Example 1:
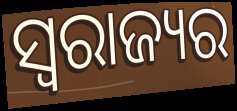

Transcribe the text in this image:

ସ୍ବରାଜ୍ୟର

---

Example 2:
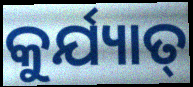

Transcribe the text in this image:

କୁର୍ଯ୍ୟାତ୍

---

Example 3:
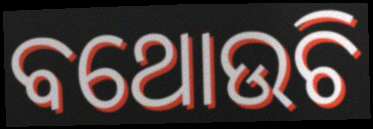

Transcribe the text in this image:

ବଥୋଉଚି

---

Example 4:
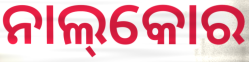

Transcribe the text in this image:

ନାଲ୍‌କୋର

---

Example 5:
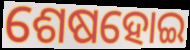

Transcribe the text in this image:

ଶେଷହୋଇ